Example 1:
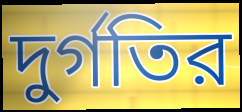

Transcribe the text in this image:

দুর্গতির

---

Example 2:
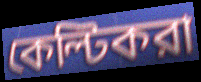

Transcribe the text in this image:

কেল্টিকরা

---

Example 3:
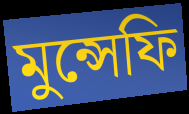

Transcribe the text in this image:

মুন্সেফি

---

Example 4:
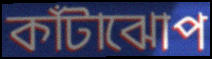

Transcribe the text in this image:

কাঁটাঝোপ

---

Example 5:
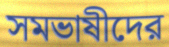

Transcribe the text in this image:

সমভাষীদের